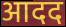
आदद